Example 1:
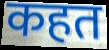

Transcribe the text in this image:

कहत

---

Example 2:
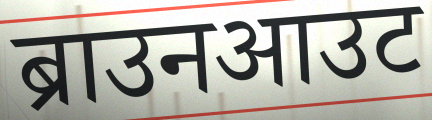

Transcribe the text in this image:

ब्राउनआउट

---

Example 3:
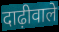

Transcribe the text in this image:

दाढ़ीवाले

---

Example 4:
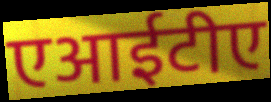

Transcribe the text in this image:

एआईटीए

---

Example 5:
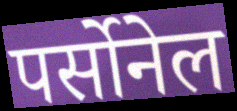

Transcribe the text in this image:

पर्सोनेल